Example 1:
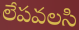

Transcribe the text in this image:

లేపవలసి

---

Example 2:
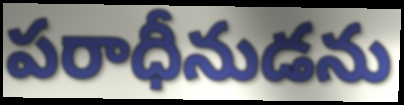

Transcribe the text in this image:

పరాధీనుడను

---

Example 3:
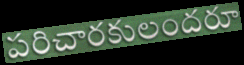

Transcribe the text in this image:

పరిచారకులందరూ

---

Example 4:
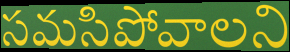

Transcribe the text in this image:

సమసిపోవాలని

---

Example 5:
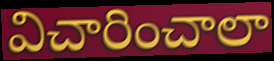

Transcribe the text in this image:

విచారించాలా